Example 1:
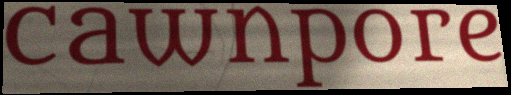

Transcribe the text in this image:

cawnpore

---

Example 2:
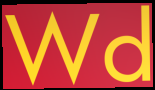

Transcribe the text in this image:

Wd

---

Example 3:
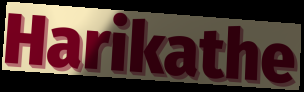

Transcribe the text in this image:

Harikathe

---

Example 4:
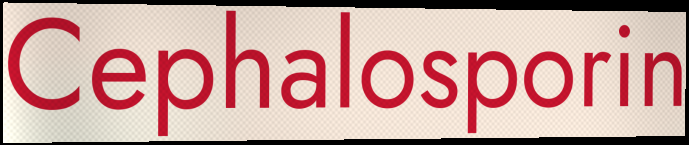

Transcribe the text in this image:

Cephalosporin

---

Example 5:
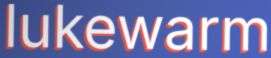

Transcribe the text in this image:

lukewarm